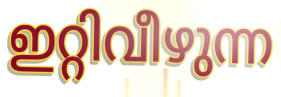
ഇറ്റിവീഴുന്ന